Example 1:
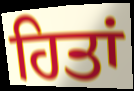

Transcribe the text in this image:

ਹਿਤਾਂ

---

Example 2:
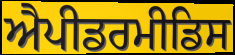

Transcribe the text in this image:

ਐਪੀਡਰਮੀਡਿਸ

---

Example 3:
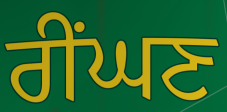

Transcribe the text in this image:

ਰੀਂਘਣ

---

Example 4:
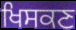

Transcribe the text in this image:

ਖਿਸਕਣ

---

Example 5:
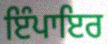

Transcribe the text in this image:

ਇੰਪਾਇਰ